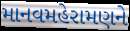
માનવમહેરામણને